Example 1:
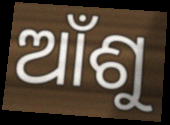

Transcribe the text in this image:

ଆଁଶୁ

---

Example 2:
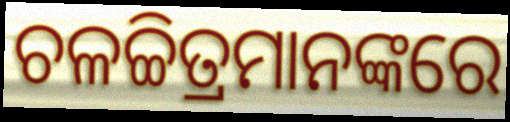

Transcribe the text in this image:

ଚଳଚ୍ଚିତ୍ରମାନଙ୍କରେ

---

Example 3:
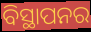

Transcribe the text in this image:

ବିସ୍ଥାପନର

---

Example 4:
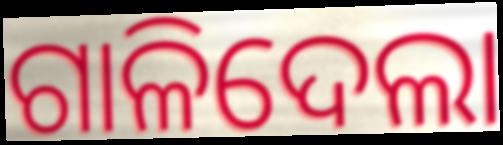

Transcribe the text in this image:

ଗାଳିଦେଲା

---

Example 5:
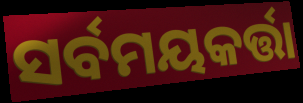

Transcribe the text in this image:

ସର୍ବମୟକର୍ତ୍ତା